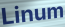
Linum